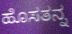
ಹೊಸತನ್ನ